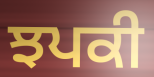
ਝਪਕੀ